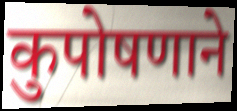
कुपोषणाने